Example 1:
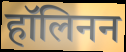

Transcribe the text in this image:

हॉलिनन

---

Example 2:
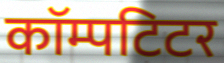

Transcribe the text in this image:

कॉम्पटिटर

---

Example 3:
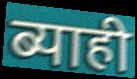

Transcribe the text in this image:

ब्याही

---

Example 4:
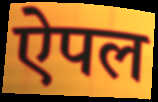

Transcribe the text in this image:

ऐपल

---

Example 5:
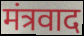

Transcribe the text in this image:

मंत्रवाद